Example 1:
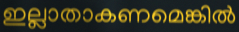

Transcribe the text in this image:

ഇല്ലാതാകണമെങ്കിൽ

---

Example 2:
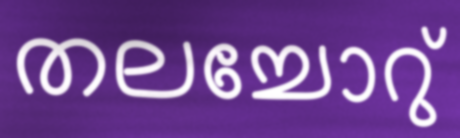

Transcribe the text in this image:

തലച്ചോറു്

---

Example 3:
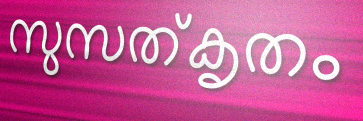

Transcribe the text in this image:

സുസത്കൃതം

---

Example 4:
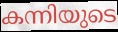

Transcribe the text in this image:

കന്നിയുടെ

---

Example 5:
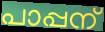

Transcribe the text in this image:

പാപ്പന്